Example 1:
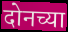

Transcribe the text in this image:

दोनच्या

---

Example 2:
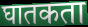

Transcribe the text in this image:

घातकता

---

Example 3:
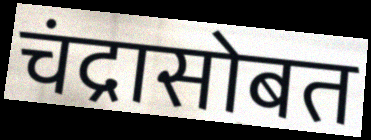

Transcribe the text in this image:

चंद्रासोबत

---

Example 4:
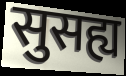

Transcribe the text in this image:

सुसह्य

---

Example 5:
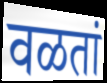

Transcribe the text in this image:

वळतां